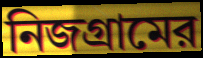
নিজগ্রামের